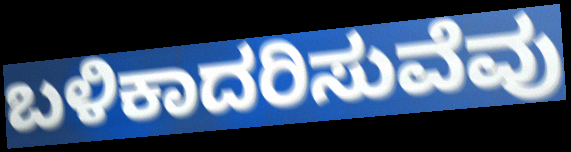
ಬಳಿಕಾದರಿಸುವೆವು